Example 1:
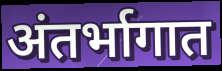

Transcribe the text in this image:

अंतर्भागात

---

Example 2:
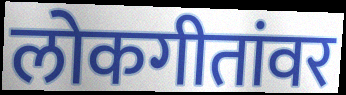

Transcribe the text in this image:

लोकगीतांवर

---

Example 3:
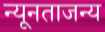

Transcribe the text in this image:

न्यूनताजन्य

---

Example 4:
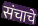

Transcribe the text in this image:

संचाचे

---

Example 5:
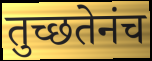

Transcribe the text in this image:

तुच्छतेनंच